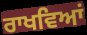
ਰਾਖਵਿਆਂ